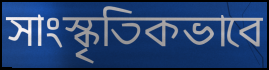
সাংস্কৃতিকভাবে